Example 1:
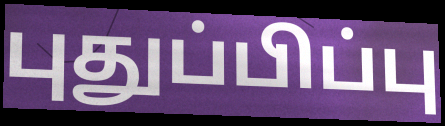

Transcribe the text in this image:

புதுப்பிப்பு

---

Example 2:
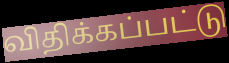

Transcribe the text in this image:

விதிக்கப்பட்டு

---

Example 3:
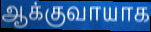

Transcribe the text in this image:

ஆக்குவாயாக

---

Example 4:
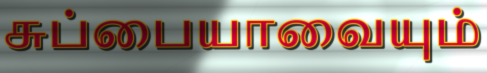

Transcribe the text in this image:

சுப்பையாவையும்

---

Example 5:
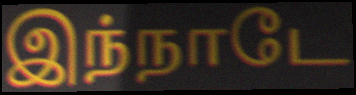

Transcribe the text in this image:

இந்நாடே